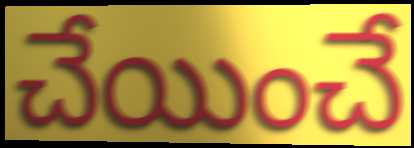
చేయించే